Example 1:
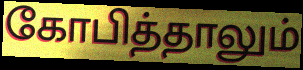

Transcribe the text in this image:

கோபித்தாலும்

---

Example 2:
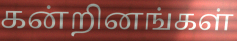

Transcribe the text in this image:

கன்றினங்கள்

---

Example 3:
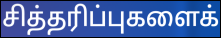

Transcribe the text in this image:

சித்தரிப்புகளைக்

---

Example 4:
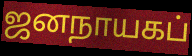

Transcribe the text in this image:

ஜனநாயகப்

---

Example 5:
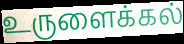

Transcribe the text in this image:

உருளைக்கல்